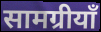
सामग्रीयाँ